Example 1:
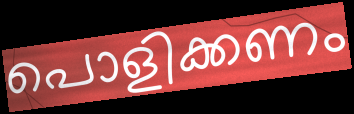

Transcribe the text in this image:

പൊളിക്കണം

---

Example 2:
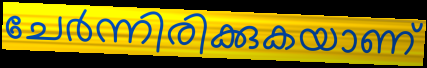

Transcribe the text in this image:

ചേർന്നിരിക്കുകയാണ്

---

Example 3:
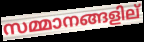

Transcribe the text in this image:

സമ്മാനങ്ങളില്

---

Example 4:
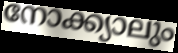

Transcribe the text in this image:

നോക്ക്യാലും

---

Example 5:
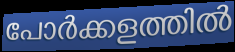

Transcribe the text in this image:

പോർക്കളത്തിൽ